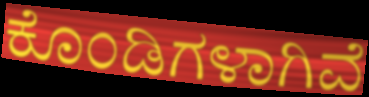
ಕೊಂಡಿಗಳಾಗಿವೆ